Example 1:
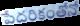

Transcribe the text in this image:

పేదరికంతోనో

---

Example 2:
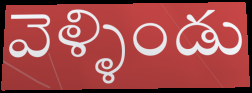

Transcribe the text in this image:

వెళ్ళిండు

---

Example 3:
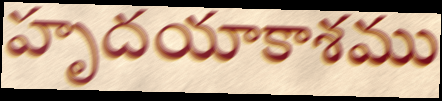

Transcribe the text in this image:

హృదయాకాశము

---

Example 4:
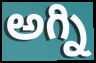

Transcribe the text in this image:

అగ్ని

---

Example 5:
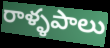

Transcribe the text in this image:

రాళ్ళపాలు